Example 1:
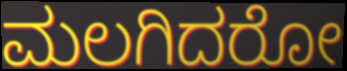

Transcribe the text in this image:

ಮಲಗಿದರೋ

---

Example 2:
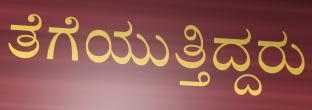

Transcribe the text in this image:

ತೆಗೆಯುತ್ತಿದ್ದರು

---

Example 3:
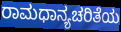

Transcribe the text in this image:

ರಾಮಧಾನ್ಯಚರಿತೆಯ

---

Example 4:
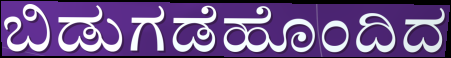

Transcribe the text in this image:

ಬಿಡುಗಡೆಹೊಂದಿದ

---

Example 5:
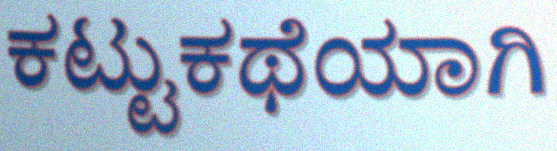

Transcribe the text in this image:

ಕಟ್ಟುಕಥೆಯಾಗಿ